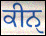
ਕੀਨੑ